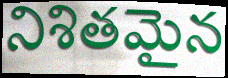
నిశితమైన